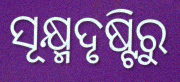
ସୂକ୍ଷ୍ମଦୃଷ୍ଟିରୁ